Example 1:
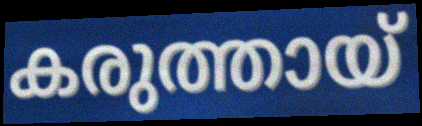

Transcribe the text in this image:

കരുത്തായ്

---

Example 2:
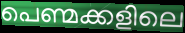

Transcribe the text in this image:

പെണ്മക്കളിലെ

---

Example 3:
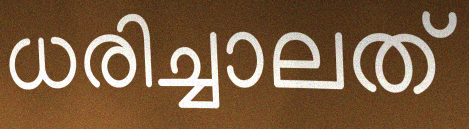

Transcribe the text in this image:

ധരിച്ചാലത്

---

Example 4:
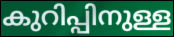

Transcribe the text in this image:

കുറിപ്പിനുള്ള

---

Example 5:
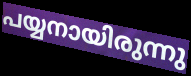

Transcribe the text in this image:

പയ്യനായിരുന്നു